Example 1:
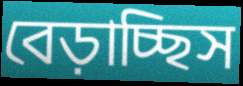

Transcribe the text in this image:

বেড়াচ্ছিস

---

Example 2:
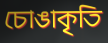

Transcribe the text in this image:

চোঙাকৃতি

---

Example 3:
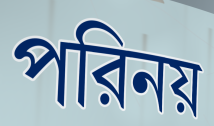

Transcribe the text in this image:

পরিনয়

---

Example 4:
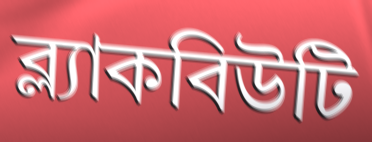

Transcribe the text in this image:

ব্ল্যাকবিউটি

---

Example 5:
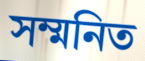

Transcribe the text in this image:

সম্মনিত